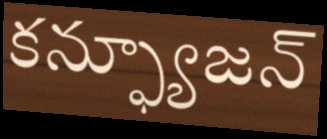
కన్ఫ్యూజన్